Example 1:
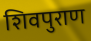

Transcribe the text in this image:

शिवपुराण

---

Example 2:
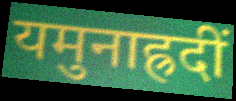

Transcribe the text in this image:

यमुनाह्रदीं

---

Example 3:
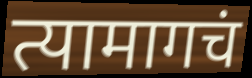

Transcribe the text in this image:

त्यामागचं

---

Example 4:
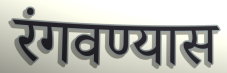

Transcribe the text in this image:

रंगवण्यास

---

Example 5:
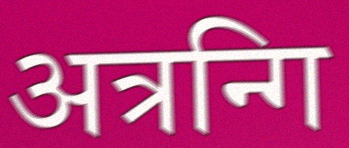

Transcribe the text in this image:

अत्रन्गि